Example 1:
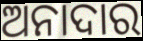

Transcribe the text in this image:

ଅନାଦାର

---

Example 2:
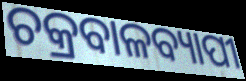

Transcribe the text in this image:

ଚକ୍ରବାଳବ୍ୟାପୀ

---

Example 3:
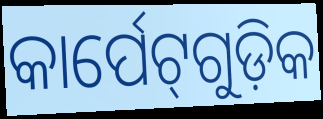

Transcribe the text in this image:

କାର୍ପେଟ୍‌ଗୁଡ଼ିକ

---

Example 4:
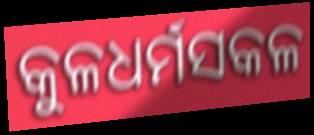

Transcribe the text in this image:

କୁଳଧର୍ମସକଳ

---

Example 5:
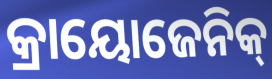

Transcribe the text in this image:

କ୍ରାୟୋଜେନିକ୍